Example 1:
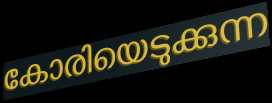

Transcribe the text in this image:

കോരിയെടുക്കുന്ന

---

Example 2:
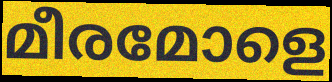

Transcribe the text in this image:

മീരമോളെ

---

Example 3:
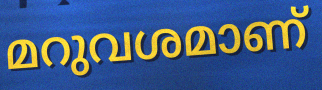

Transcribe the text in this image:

മറുവശമാണ്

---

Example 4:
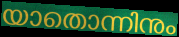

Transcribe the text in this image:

യാതൊന്നിനും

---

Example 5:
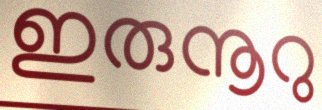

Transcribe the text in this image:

ഇരുനൂറു